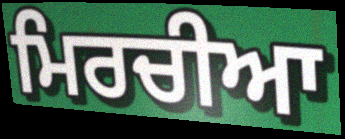
ਮਿਰਚੀਆ